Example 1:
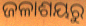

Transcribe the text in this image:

ଜଳାଶୟରୁ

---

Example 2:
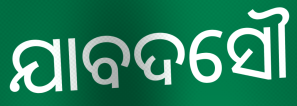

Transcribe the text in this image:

ଯାବଦସୌ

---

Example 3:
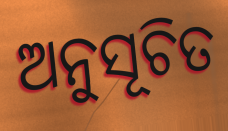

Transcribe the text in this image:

ଅନୁସୂଚିତ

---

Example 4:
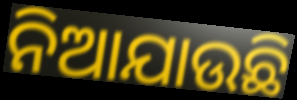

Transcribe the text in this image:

ନିଆଯାଉଛି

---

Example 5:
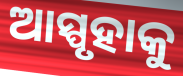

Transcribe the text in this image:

ଆସ୍ପୃହାକୁ